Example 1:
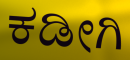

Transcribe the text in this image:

ಕಡೀಗಿ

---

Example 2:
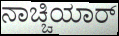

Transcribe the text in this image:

ನಾಚ್ಚಿಯಾರ್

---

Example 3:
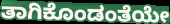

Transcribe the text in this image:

ತಾಗಿಕೊಂಡಂತೆಯೇ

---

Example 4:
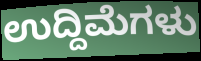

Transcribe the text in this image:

ಉದ್ದಿಮೆಗಳು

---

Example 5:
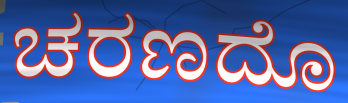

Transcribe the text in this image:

ಚರಣದೊ